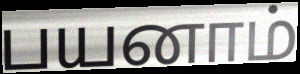
பயனாம்